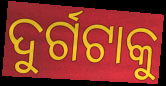
ଦୁର୍ଗଟାକୁ